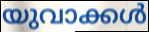
യുവാക്കൾ